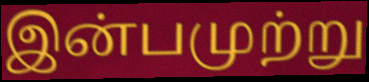
இன்பமுற்று